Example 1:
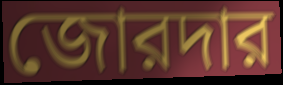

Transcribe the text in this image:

জোরদার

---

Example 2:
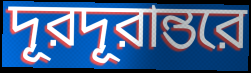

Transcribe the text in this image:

দূরদূরান্তরে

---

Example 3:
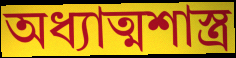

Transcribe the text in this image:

অধ্যাত্মশাস্ত্র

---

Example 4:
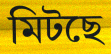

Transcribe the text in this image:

মিটছে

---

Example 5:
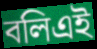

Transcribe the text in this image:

বলিএই